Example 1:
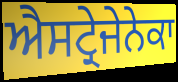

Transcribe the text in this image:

ਐਸਟ੍ਰੇਜੇਨੇਕਾ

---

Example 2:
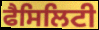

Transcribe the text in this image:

ਫੈਸਿਲਿਟੀ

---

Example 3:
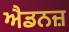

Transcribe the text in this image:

ਐਡਨਜ਼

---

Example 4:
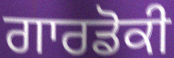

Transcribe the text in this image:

ਗਾਰਡੋਕੀ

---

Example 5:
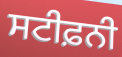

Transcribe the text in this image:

ਸਟੀਫ਼ਨੀ